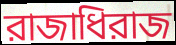
রাজাধিরাজ